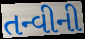
તન્વીની